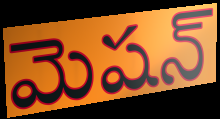
మెషన్